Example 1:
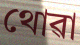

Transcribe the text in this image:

থোৱা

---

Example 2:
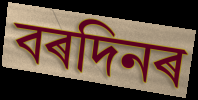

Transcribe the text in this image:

বৰদিনৰ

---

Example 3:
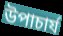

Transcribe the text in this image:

উপাচাৰ্য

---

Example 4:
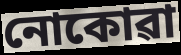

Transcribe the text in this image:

নোকোৱা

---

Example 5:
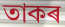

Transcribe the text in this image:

তাকৰ